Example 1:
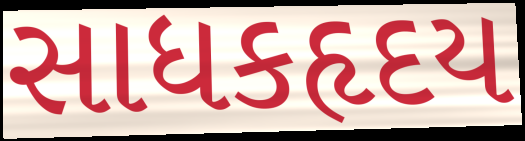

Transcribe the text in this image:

સાધકહૃદય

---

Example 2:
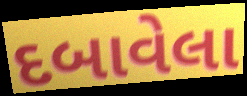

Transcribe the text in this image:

દબાવેલા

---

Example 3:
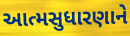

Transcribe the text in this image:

આત્મસુધારણાને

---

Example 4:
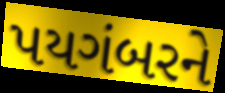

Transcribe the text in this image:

પયગંબરને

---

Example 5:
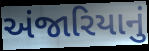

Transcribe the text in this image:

અંજારિયાનું